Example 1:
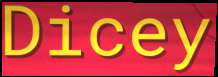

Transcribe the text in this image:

Dicey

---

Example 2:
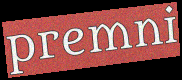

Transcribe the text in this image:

premni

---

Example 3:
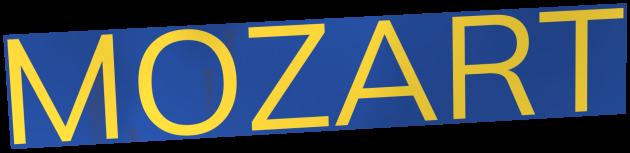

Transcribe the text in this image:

MOZART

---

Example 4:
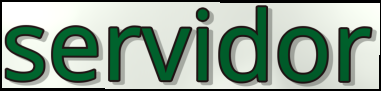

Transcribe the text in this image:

servidor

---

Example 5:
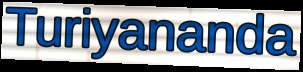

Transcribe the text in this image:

Turiyananda